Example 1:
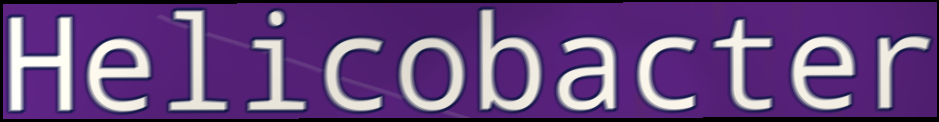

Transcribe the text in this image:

Helicobacter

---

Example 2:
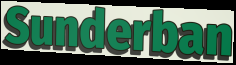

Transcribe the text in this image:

Sunderban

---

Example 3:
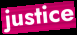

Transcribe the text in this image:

justice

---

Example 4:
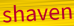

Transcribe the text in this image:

shaven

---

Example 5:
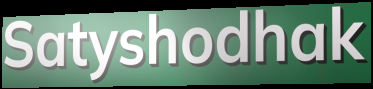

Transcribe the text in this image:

Satyshodhak